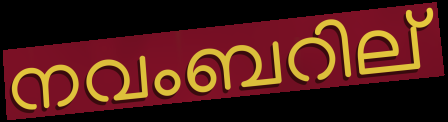
നവംബറില്